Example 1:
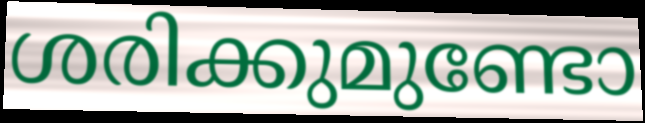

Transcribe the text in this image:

ശരിക്കുമുണ്ടോ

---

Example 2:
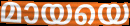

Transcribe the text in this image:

മായയെ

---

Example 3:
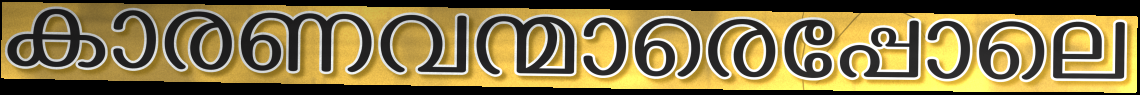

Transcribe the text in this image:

കാരണവന്മാരെപ്പോലെ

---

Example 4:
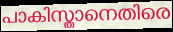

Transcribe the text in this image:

പാകിസ്താനെതിരെ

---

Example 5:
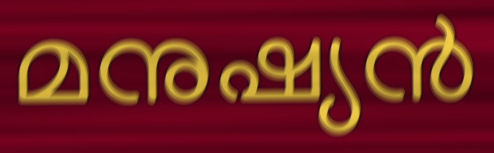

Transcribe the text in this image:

മനുഷ്യൻ